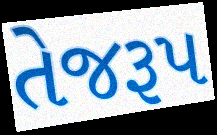
તેજરૂપ